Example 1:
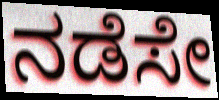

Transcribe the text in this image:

ನಡೆಸೇ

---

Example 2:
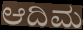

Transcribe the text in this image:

ಆದಿಮ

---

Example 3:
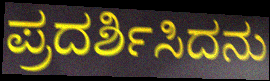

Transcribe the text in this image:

ಪ್ರದರ್ಶಿಸಿದನು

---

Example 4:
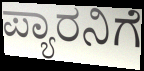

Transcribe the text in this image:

ಪ್ಯಾರನಿಗೆ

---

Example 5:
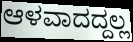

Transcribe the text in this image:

ಆಳವಾದದ್ದಲ್ಲ